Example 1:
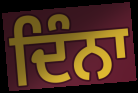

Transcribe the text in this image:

ਦਿੰਨਾ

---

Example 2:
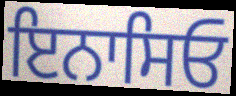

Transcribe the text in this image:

ਇਨਾਸਿਓ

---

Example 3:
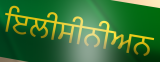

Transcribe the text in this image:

ਇਲੀਸੀਨੀਅਨ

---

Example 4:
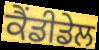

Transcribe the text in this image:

ਕੈਂਡੀਡੇਲ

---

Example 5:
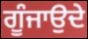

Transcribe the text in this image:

ਗੂੰਜਾਉਦੇ